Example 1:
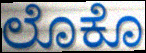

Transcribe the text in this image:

ಲೊಕೊ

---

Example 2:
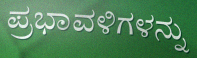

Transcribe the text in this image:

ಪ್ರಭಾವಳಿಗಳನ್ನು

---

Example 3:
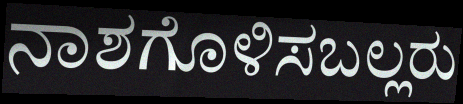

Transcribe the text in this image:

ನಾಶಗೊಳಿಸಬಲ್ಲರು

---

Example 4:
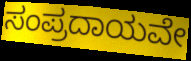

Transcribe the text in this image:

ಸಂಪ್ರದಾಯವೇ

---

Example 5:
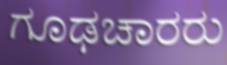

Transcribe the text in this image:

ಗೂಢಚಾರರು